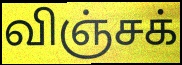
விஞ்சக்